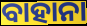
ବାହାନା